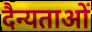
दैन्यताओं